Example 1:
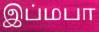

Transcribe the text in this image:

இப்மபா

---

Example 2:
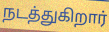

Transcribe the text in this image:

நடத்துகிறார்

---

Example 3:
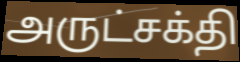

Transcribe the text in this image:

அருட்சக்தி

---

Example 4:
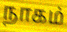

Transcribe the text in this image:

நாகம்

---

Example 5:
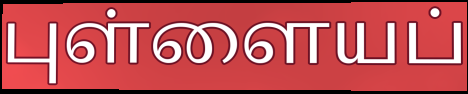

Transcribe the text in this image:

புள்ளையப்